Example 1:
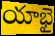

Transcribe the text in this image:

యాభై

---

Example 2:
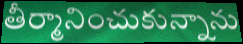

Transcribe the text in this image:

తీర్మానించుకున్నాను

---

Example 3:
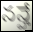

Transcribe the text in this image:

నన్హే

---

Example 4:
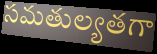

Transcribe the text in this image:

సమతుల్యతగా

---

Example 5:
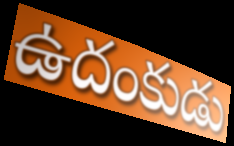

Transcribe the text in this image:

ఉదంకుడు